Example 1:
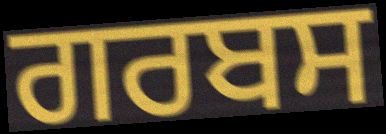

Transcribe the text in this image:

ਗਰਬਸ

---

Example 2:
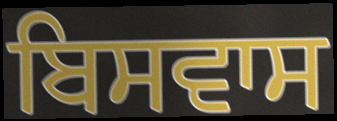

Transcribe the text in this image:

ਬਿਸਵਾਸ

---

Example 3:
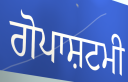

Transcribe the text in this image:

ਗੋਪਾਸ਼ਟਮੀ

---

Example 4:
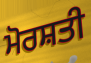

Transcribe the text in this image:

ਮੋਰਸ਼ਤੀ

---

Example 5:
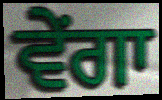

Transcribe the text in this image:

ਵੇਂਗਾ